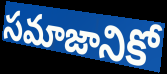
సమాజానికో